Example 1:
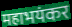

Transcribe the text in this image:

महाभयंकर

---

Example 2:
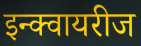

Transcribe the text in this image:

इन्क्वायरीज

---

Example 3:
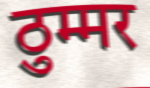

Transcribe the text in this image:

ठुम्मर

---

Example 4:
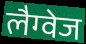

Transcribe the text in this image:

लैग्वेज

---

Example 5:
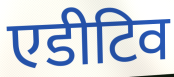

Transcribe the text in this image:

एडीटिव